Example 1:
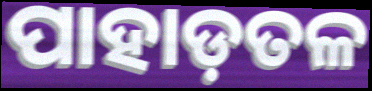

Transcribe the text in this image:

ପାହାଡ଼ତଳ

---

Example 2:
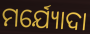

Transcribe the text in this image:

ମର୍ଯ୍ୟୋଦା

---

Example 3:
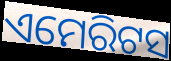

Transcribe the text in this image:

ଏମେରିଟସ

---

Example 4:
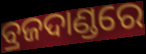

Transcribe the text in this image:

ବ୍ରଜଦାଣ୍ଡରେ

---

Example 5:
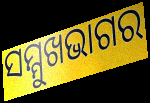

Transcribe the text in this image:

ସମ୍ମୁଖଭାଗର